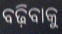
ବଢ଼ିବାକୁ